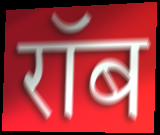
रॉब